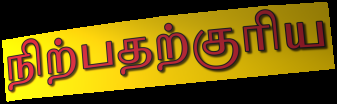
நிற்பதற்குரிய